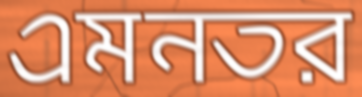
এমনতর